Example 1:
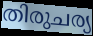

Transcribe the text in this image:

തിരുചര്യ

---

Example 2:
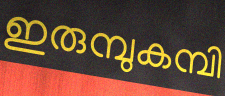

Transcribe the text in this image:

ഇരുമ്പുകമ്പി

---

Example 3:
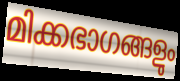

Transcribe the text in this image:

മിക്കഭാഗങ്ങളും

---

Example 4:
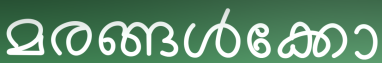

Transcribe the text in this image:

മരങ്ങൾക്കോ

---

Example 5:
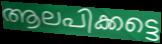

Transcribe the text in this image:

ആലപിക്കട്ടെ